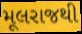
મૂલરાજથી